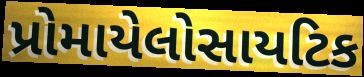
પ્રોમાયેલોસાયટિક